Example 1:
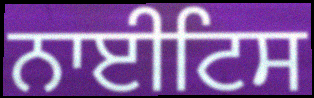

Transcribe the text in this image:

ਨਾਈਟਿਸ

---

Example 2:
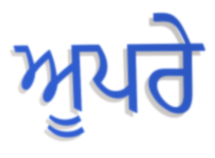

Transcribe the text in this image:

ਅੂਪਰੇ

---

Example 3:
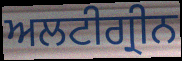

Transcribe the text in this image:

ਅਲਟੀਗ੍ਰੀਨ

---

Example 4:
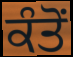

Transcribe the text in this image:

ਕੰਤੋਂ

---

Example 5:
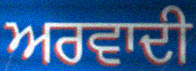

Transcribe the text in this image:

ਅਰਵਾਦੀ